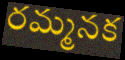
రమ్మనక